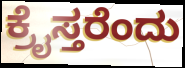
ಕ್ರೈಸ್ತರೆಂದು